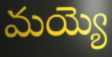
మయ్యె